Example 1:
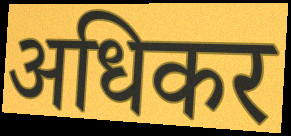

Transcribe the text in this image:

अधिकर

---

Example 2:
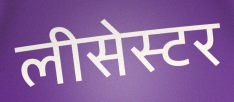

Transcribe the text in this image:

लीसेस्टर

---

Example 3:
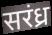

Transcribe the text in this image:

सरंध्र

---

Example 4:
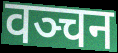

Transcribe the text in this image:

वञ्चन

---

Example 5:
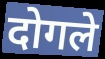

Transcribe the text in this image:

दोगले